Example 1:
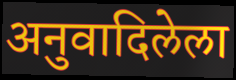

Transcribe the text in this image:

अनुवादिलेला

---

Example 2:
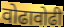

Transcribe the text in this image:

वोढावोढी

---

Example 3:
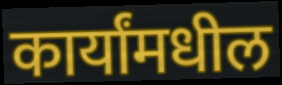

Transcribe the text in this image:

कार्यांमधील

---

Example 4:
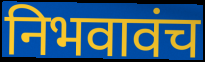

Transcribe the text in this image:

निभवावंच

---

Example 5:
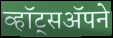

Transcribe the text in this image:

व्हॉट्सॲपने